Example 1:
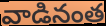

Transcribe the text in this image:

వాడినంత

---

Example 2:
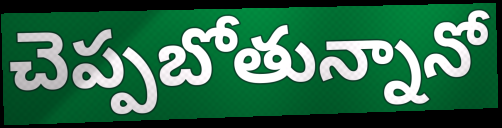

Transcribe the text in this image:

చెప్పబోతున్నానో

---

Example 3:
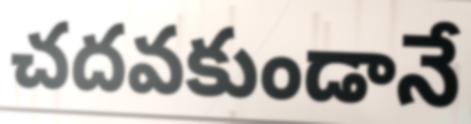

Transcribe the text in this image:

చదవకుండానే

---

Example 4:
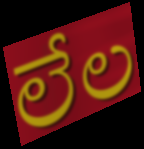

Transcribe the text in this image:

లేల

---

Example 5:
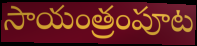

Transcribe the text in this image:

సాయంత్రంపూట